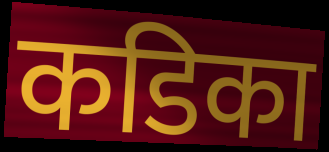
कडिका